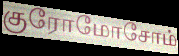
குரோமோசோம்